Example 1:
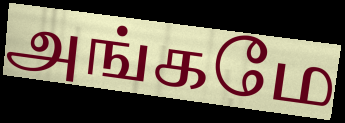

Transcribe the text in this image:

அங்கமே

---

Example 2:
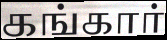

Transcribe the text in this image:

கங்கார்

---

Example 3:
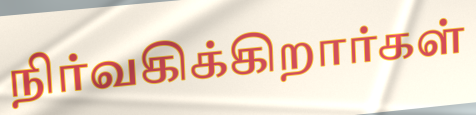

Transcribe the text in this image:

நிர்வகிக்கிறார்கள்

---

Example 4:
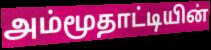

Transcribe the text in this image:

அம்மூதாட்டியின்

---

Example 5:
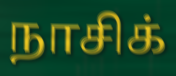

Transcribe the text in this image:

நாசிக்